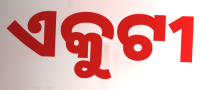
ଏକୁଟୀ